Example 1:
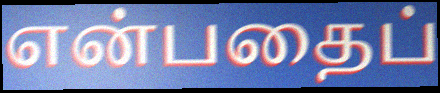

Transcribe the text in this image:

என்பதைப்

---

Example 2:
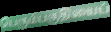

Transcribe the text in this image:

பெரும்பகுதியைப்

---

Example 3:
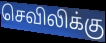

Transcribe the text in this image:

செவிலிக்கு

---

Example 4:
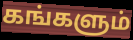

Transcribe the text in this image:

கங்களும்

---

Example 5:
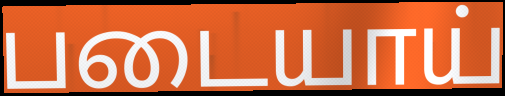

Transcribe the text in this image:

படையாய்